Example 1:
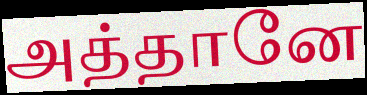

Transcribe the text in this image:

அத்தானே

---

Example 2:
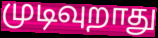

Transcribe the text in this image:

முடிவுறாது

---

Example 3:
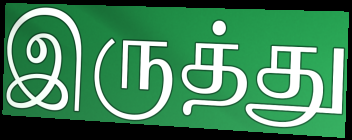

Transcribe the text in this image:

இருத்து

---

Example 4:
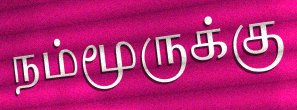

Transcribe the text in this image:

நம்மூருக்கு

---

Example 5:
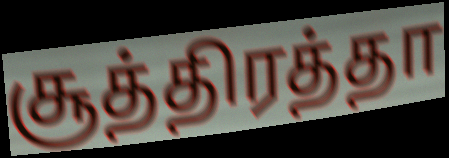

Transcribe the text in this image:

சூத்திரத்தா